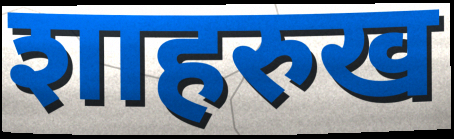
शाहरुख